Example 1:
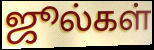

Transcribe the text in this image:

ஜூல்கள்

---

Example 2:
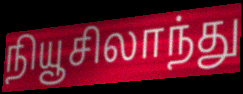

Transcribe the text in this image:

நியூசிலாந்து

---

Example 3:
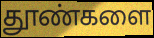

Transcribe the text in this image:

தூண்களை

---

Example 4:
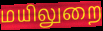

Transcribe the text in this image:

மயிலுறை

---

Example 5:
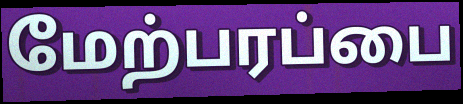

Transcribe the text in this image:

மேற்பரப்பை